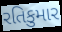
રતિકુમાર